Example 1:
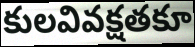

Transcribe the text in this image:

కులవివక్షతకూ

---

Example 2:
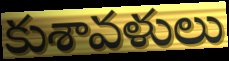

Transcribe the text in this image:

కుశావళులు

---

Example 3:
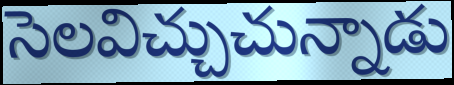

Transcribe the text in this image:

సెలవిచ్చుచున్నాడు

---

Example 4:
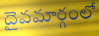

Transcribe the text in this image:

దైవమార్గంలో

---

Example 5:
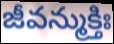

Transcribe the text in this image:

జీవన్ముక్తిః